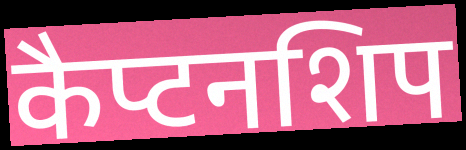
कैप्टनशिप